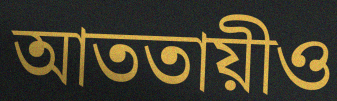
আততায়ীও